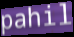
pahil